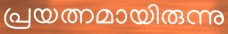
പ്രയത്നമായിരുന്നു